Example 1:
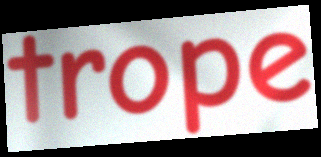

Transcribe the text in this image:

trope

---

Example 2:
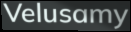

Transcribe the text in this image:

Velusamy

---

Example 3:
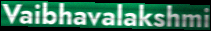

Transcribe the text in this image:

Vaibhavalakshmi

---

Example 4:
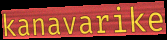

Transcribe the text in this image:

kanavarike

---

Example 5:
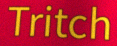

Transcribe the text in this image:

Tritch